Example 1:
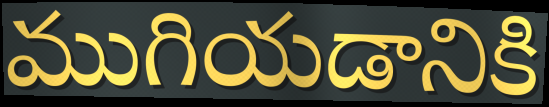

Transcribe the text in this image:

ముగియడానికి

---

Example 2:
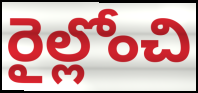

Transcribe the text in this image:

రైల్లోంచి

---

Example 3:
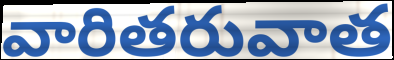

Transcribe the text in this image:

వారితరువాత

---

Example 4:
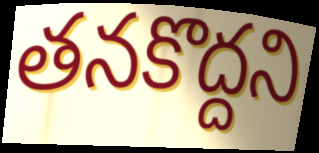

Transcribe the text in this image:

తనకొద్దని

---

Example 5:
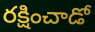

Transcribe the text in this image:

రక్షించాడో